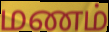
மணம்